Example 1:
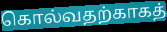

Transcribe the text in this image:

கொல்வதற்காகத்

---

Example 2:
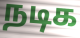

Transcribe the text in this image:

நடிக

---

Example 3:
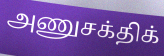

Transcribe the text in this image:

அணுசக்திக்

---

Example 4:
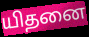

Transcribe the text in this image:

யிதனை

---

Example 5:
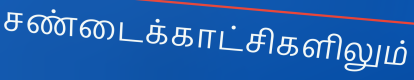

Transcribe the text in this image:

சண்டைக்காட்சிகளிலும்